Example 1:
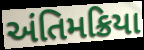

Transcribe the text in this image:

અંતિમક્રિયા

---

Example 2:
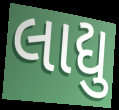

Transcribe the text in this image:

લાદ્યુ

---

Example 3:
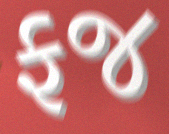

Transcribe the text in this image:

ફજ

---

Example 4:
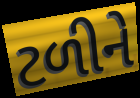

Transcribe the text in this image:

ટળીને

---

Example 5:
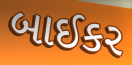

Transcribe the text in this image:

બાઈકર